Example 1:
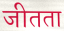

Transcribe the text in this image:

जीतता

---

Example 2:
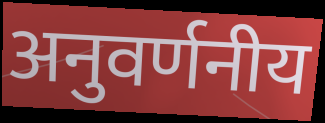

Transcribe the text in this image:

अनुवर्णनीय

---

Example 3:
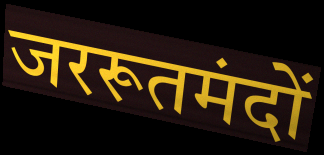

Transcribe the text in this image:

जररूतमंदों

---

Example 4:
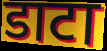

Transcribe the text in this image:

डाटा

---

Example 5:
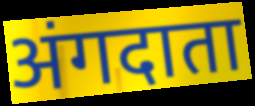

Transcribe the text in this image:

अंगदाता